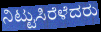
ನಿಟ್ಟುಸಿರೆಳೆದರು